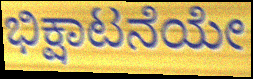
ಭಿಕ್ಷಾಟನೆಯೇ